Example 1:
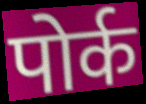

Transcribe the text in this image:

पोर्क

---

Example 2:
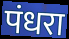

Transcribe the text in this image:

पंधरा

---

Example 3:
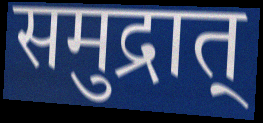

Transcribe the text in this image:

समुद्रात्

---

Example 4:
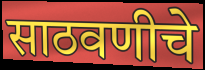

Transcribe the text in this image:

साठवणीचे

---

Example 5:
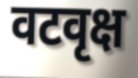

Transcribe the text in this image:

वटवृक्ष